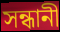
সন্ধানী